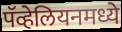
पॅव्हेलियनमध्ये